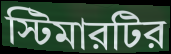
স্টিমারটির